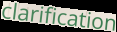
clarification